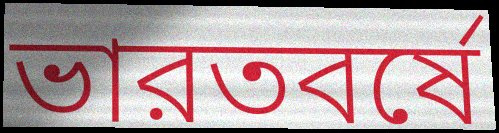
ভারতবর্ষে